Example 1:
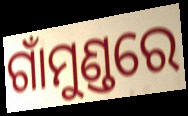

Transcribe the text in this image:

ଗାଁମୁଣ୍ଡରେ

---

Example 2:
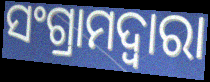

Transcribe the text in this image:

ସଂଗ୍ରାମଦ୍ଵାରା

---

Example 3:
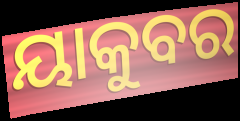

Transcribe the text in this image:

ୟାକୁବର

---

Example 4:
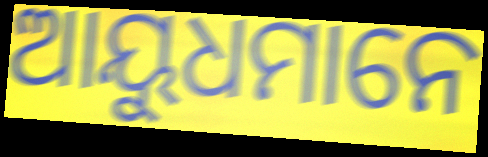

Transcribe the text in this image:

ଆୟୁଧମାନେ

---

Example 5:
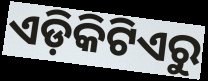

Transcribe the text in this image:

ଏଡ଼ିକିଟିଏରୁ